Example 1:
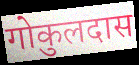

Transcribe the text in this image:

गोकुलदास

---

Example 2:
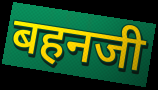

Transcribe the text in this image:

बहनजी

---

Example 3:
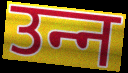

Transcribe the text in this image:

उन्न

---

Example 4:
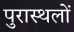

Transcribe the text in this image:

पुरास्थलों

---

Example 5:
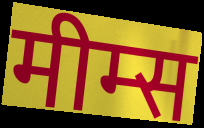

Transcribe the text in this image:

मीम्स